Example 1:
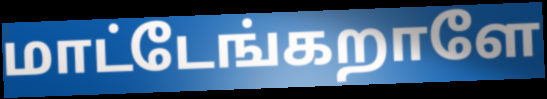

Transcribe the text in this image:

மாட்டேங்கறாளே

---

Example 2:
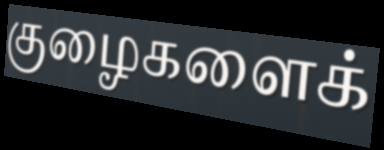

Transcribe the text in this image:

குழைகளைக்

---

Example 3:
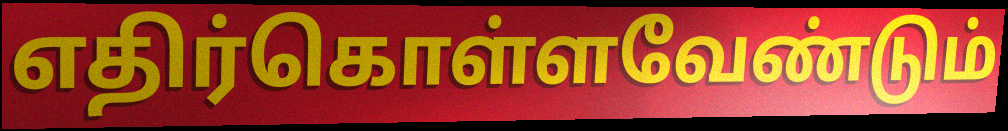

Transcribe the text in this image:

எதிர்கொள்ளவேண்டும்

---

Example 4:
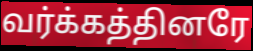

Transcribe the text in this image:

வர்க்கத்தினரே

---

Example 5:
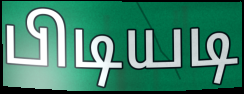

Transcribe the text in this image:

பிடியடி